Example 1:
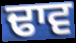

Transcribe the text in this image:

ਢਾਵ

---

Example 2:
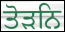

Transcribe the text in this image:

ਤੋੜਨਿ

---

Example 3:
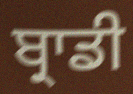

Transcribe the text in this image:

ਬ੍ਰਾਡੀ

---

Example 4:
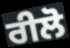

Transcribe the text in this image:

ਰੀਲੋ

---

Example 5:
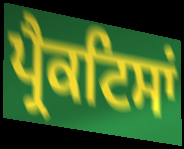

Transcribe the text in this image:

ਪ੍ਰੈਕਟਿਸਾਂ